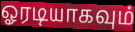
ஓரடியாகவும்